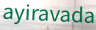
ayiravada